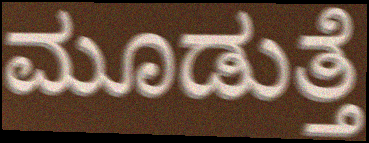
ಮೂಡುತ್ತೆ